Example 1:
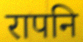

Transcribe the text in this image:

रापनि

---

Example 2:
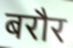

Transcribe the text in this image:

बरौर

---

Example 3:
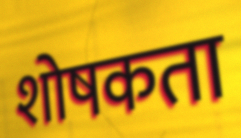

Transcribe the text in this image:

शोषकता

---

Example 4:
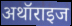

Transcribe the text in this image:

अथॉराइज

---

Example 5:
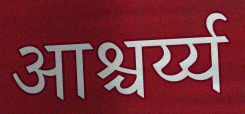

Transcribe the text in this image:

आश्चर्य्य